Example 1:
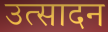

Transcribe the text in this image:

उत्सादन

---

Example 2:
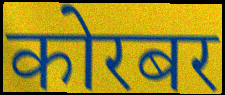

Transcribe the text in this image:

कोरबर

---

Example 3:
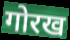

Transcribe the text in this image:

गोरख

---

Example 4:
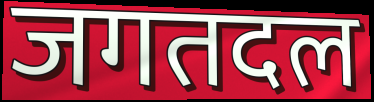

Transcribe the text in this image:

जगतदल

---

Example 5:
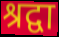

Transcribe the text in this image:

श्रद्वा